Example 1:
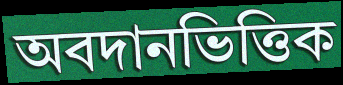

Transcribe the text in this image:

অবদানভিত্তিক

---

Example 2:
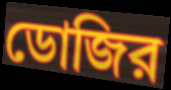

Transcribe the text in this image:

ডোজির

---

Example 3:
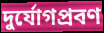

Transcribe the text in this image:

দুর্যোগপ্রবণ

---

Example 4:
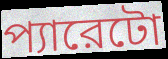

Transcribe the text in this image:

প্যারেটো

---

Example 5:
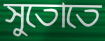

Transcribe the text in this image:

সুতোতে